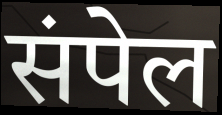
संपेल